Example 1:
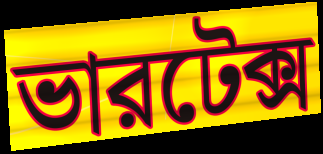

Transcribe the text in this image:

ভারটেক্স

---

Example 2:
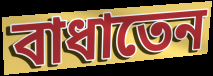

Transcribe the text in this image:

বাধাতেন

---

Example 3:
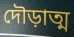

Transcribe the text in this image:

দৌড়াত্ম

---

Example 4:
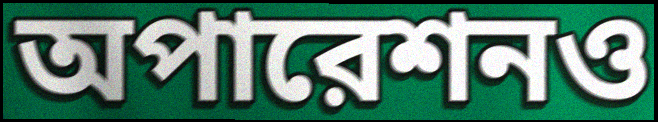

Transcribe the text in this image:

অপারেশনও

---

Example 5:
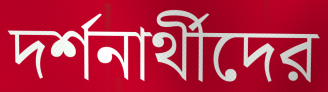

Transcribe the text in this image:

দর্শনার্থীদের